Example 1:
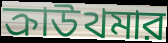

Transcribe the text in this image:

ক্রাউথমার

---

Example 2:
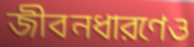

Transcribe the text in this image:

জীবনধারণেও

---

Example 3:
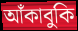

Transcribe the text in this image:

আঁকাবুকি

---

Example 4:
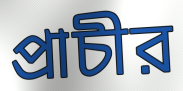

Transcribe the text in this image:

প্রাচীর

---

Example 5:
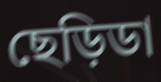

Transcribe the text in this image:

ছেড়িডা